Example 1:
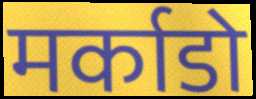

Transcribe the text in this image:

मर्काडो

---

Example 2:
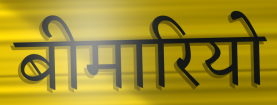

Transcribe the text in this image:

बीमारियो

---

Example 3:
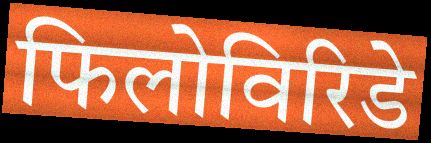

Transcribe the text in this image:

फिलोविरिडे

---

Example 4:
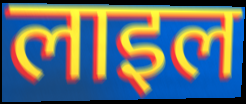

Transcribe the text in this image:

लाइल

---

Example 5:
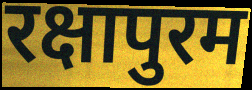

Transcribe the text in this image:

रक्षापुरम